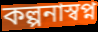
কল্পনাস্বপ্ন